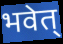
भवेत्